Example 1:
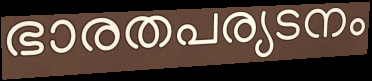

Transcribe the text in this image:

ഭാരതപര്യടനം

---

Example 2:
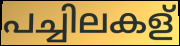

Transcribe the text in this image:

പച്ചിലകള്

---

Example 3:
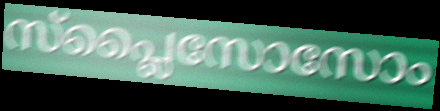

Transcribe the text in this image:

സ്പ്ലൈസോസോം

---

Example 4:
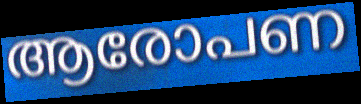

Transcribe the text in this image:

ആരോപണ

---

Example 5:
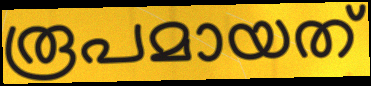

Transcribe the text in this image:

രൂപമായത്